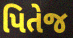
પિતેજ